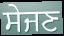
ਸੇਜਣ